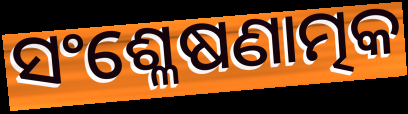
ସଂଶ୍ଳେଷଣାତ୍ମକ